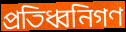
প্রতিধ্বনিগণ